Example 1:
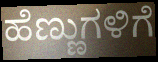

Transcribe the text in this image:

ಹೆಣ್ಣುಗಳಿಗೆ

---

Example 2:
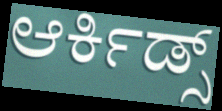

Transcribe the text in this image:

ಆರ್ಕಿಡ್ಸ್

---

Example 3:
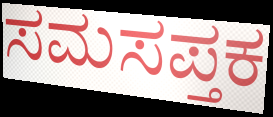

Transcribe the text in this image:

ಸಮಸಪ್ತಕ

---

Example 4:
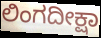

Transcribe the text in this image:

ಲಿಂಗದೀಕ್ಷಾ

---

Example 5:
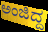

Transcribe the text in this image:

ಅಂಜಿದ್ದ